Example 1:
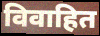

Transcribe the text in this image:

विवाहित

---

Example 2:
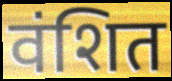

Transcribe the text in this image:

वंशित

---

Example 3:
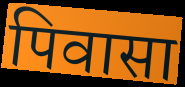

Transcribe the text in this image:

पिवासा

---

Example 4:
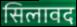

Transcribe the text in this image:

सिलावद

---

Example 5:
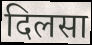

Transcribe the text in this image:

दिलसा